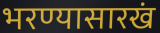
भरण्यासारखं